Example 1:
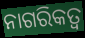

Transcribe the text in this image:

ନାଗରିକତ୍ୱ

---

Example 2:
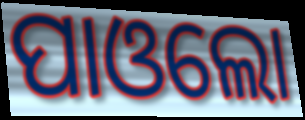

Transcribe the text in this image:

ପାଓଲୋ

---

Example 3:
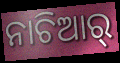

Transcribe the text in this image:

ନାଚିଆର୍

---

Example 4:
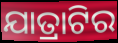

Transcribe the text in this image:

ଯାତ୍ରାଟିର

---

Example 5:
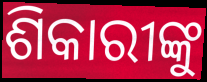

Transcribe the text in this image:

ଶିକାରୀଙ୍କୁ